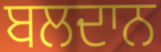
ਬਲਦਾਨ